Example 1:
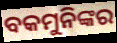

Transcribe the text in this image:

ବକମୁନିଙ୍କର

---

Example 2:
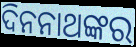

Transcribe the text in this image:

ଦିନନାଥଙ୍କର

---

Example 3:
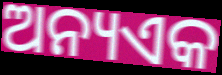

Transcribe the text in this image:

ଅନ୍ୟଏକ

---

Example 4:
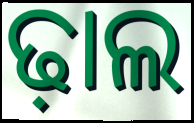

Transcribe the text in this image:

ଢ଼ାଲ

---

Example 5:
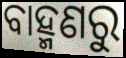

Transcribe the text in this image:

ବାହ୍ମଣରୁ